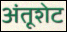
अंतूशेट